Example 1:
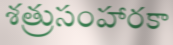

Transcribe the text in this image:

శత్రుసంహారకా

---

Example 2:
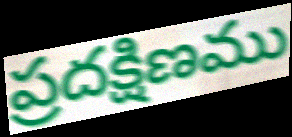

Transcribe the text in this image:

ప్రదక్షిణము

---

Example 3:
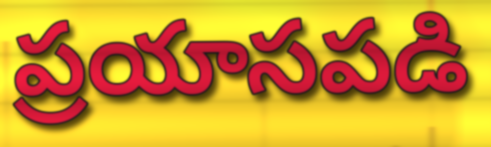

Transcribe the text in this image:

ప్రయాసపడి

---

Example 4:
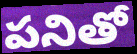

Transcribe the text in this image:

పనితో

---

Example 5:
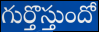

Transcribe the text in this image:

గుర్తొస్తుందో